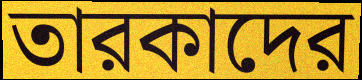
তারকাদের